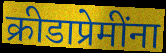
क्रीडाप्रेमींना